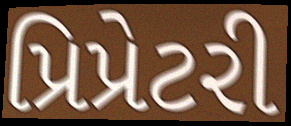
પ્રિપ્રેટરી